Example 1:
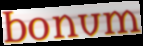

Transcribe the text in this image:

bonum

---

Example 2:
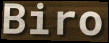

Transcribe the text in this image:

Biro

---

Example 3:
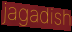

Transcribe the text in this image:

jagadish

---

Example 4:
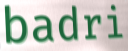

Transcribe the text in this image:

badri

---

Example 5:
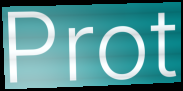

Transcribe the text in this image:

Prot